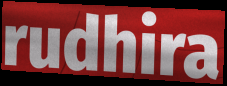
rudhira